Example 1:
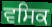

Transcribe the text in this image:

ਵਸਿਕ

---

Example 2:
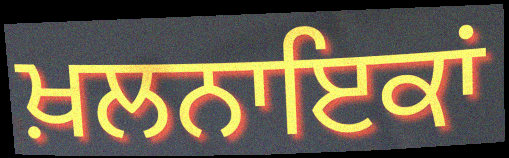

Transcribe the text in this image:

ਖ਼ਲਨਾਇਕਾਂ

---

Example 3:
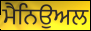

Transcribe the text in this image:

ਮੈਨਿਉਅਲ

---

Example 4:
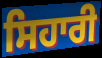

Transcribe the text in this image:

ਸਿਹਾਰੀ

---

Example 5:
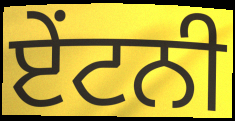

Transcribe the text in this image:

ਏਂਟਨੀ